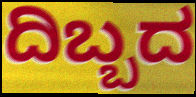
ದಿಬ್ಬದ